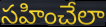
సహించేలా